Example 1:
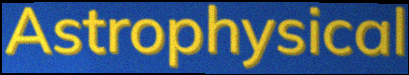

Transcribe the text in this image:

Astrophysical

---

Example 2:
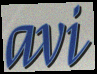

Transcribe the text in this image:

avi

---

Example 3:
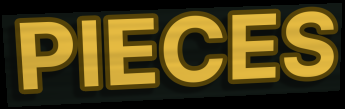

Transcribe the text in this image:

PIECES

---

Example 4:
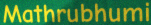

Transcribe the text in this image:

Mathrubhumi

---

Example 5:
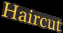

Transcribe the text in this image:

Haircut